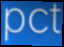
pct